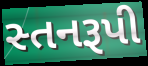
સ્તનરૂપી